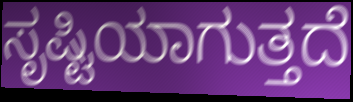
ಸೃಷ್ಟಿಯಾಗುತ್ತದೆ